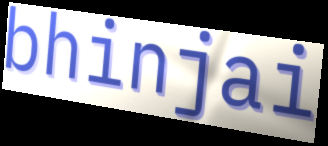
bhinjai